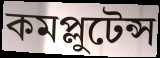
কমপ্লুটেন্স